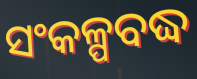
ସଂକଳ୍ପବଦ୍ଧ